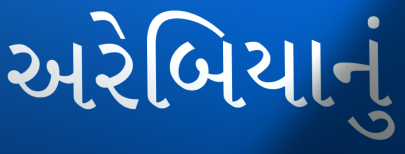
અરેબિયાનું